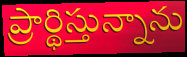
ప్రార్థిస్తున్నాను